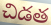
చిడత